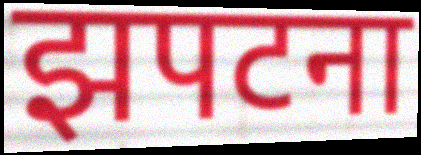
झपटना